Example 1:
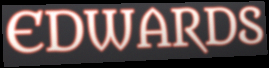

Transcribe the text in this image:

EDWARDS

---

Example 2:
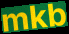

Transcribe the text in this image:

mkb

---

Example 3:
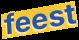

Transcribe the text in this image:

feest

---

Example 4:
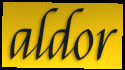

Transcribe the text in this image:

aldor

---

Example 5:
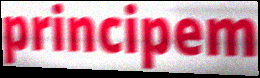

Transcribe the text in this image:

principem